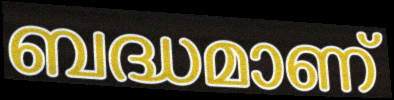
ബദ്ധമാണ്